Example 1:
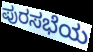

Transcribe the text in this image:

ಪುರಸಭೆಯ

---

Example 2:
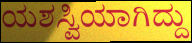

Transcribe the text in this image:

ಯಶಸ್ವಿಯಾಗಿದ್ದು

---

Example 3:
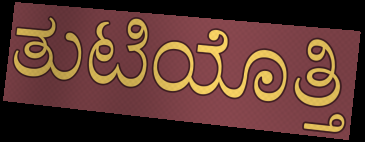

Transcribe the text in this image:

ತುಟಿಯೊತ್ತಿ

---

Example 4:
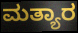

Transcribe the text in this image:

ಮತ್ಯಾರ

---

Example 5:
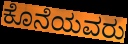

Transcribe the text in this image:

ಕೊನೆಯವರು